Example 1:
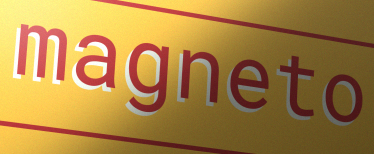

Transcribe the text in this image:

magneto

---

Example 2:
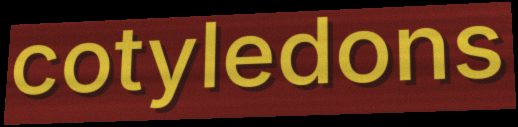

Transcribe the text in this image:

cotyledons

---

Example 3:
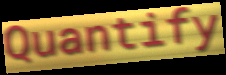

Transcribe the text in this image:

Quantify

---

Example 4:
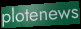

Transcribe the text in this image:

plotenews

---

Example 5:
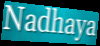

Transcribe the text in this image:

Nadhaya